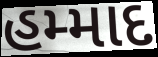
હમ્માદ